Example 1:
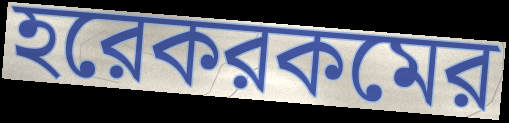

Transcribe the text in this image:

হরেকরকমের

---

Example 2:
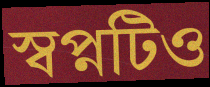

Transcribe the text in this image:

স্বপ্নটিও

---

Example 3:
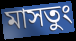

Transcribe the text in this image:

মাসতুং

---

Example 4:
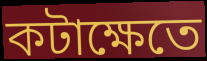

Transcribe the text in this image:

কটাক্ষেতে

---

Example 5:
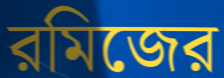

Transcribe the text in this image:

রমিজের